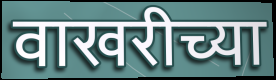
वाखरीच्या